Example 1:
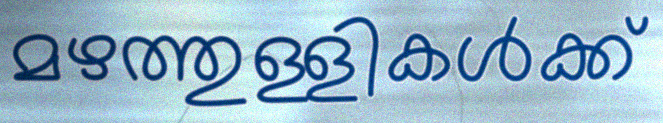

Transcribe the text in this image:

മഴത്തുള്ളികൾക്ക്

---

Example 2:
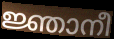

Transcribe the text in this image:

ജ്ഞാനീ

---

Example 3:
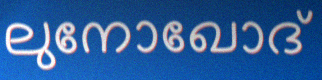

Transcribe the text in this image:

ലുനോഖോദ്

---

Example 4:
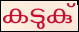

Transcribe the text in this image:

കടുകു്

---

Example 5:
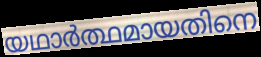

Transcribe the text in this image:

യഥാർത്ഥമായതിനെ